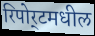
रिपोर्टमधील